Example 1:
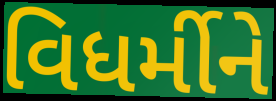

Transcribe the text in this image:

વિધર્મીને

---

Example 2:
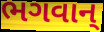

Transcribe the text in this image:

ભગવાન્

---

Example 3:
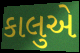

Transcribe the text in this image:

કાલુએ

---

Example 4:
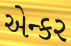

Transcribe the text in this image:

એન્કર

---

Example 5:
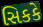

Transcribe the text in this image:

સિકકે